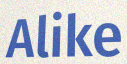
Alike